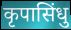
कृपासिंधु